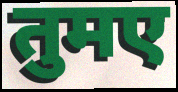
तुमए